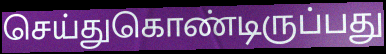
செய்துகொண்டிருப்பது